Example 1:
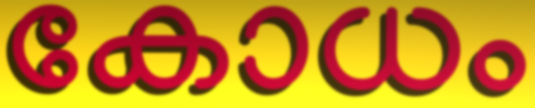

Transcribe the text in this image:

കോധം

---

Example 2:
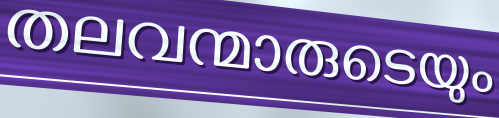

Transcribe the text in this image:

തലവന്മാരുടെയും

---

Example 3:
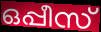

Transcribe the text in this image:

ഒപ്പീസ്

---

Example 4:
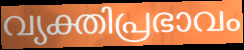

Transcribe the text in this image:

വ്യക്തിപ്രഭാവം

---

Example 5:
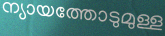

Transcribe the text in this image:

ന്യായത്തോടുമുള്ള